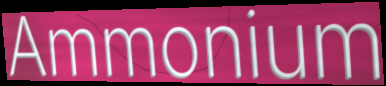
Ammonium